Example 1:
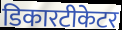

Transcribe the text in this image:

डिकारटीकेटर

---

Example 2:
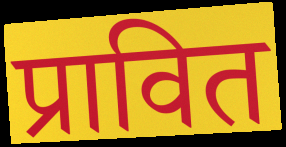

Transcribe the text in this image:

प्रावित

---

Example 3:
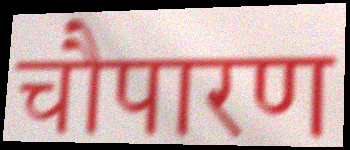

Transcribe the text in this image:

चौपारण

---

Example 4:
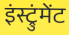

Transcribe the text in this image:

इंस्ट्रुंमेंट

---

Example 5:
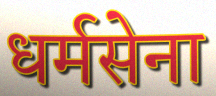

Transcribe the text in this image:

धर्मसेना